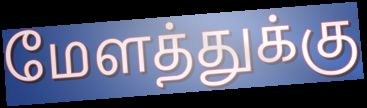
மேளத்துக்கு